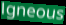
Igneous